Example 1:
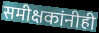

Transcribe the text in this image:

समीक्षकांनीही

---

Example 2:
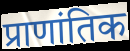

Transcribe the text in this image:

प्राणांतिक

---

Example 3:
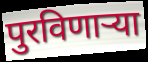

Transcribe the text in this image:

पुरविणार्‍या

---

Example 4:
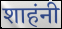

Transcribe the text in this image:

शाहंनी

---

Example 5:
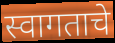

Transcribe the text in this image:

स्वागताचे